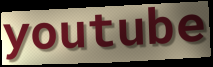
youtube